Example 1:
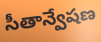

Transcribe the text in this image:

సీతాన్వేషణ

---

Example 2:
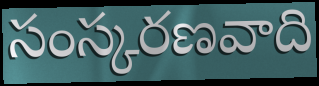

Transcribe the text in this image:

సంస్కరణవాది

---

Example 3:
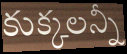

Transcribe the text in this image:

కుక్కలన్నీ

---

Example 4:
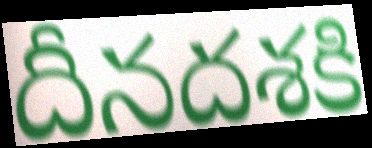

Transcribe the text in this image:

దీనదశకి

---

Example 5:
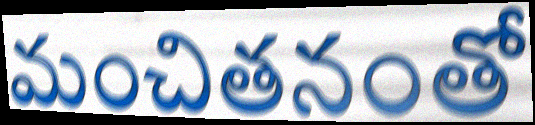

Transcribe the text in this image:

మంచితనంతో